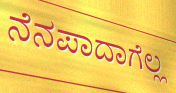
ನೆನಪಾದಾಗೆಲ್ಲ